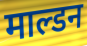
माल्डन